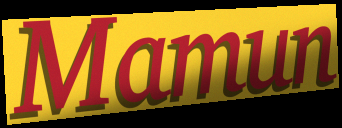
Mamun